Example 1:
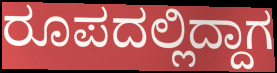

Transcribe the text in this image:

ರೂಪದಲ್ಲಿದ್ದಾಗ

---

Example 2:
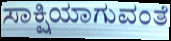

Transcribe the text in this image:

ಸಾಕ್ಷಿಯಾಗುವಂತೆ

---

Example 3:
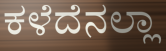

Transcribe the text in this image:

ಕಳೆದೆನಲ್ಲಾ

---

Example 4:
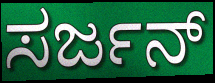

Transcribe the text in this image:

ಸರ್ಜನ್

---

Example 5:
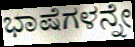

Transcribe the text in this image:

ಭಾಷೆಗಳನ್ನೇ